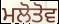
ਮਲੋਤੋਵ